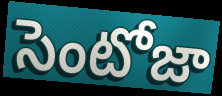
సెంటోజా